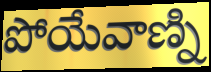
పోయేవాణ్ని